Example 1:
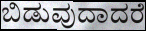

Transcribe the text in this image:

ಬಿಡುವುದಾದರೆ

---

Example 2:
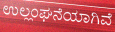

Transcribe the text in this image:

ಉಲ್ಲಂಘನೆಯಾಗಿವೆ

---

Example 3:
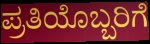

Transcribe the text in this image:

ಪ್ರತಿಯೊಬ್ಬರಿಗೆ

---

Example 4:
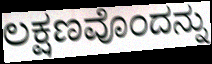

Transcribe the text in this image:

ಲಕ್ಷಣವೊಂದನ್ನು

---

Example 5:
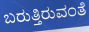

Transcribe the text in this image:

ಬರುತ್ತಿರುವಂತೆ